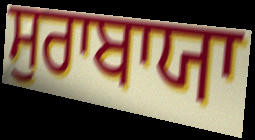
ਸੁਰਾਬਾਯਾ